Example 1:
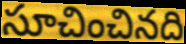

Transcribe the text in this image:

సూచించినది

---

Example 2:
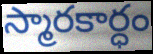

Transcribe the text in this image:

స్మారకార్ధం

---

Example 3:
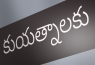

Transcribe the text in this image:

కుయత్నాలకు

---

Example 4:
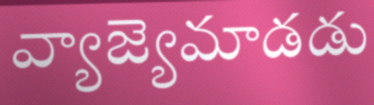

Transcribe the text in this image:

వ్యాజ్యెమాడడు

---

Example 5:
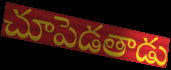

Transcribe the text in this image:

చూపెడతాడు